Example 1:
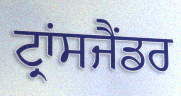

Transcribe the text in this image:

ਟ੍ਰਾਂਸਜੈਂਡਰ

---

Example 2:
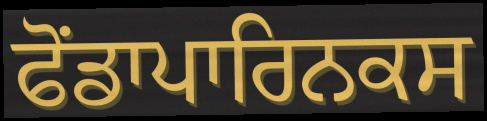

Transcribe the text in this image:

ਫੋਂਡਾਪਾਰਿਨਕਸ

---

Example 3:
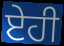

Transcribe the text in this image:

ਏਹੀ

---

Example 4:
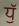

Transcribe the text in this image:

ਧੁੱ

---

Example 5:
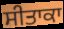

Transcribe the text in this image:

ਸੀਤਾਕਾ